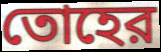
তোহের